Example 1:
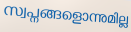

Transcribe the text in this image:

സ്വപ്നങ്ങളൊന്നുമില്ല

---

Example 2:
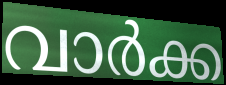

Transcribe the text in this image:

വാർക്ക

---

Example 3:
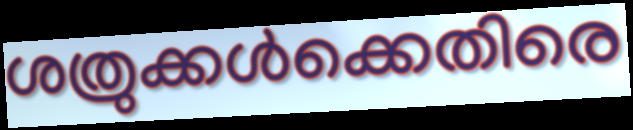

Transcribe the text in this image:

ശത്രുക്കൾക്കെതിരെ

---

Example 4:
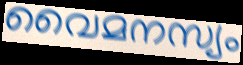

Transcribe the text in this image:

വൈമനസ്യം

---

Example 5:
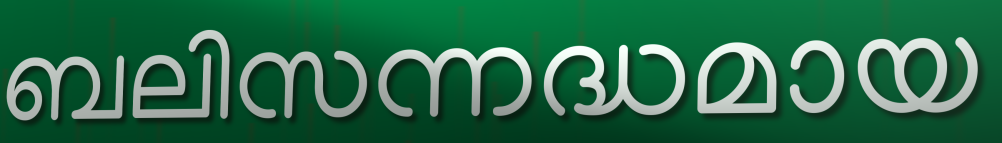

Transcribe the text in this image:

ബലിസന്നദ്ധമായ